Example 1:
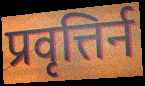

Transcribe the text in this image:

प्रवृत्तिर्न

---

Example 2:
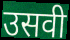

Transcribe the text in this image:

उसवी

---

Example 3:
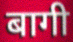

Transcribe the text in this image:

बागी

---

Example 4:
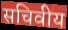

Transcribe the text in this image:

सचिवीय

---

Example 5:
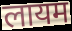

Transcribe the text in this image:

लायम